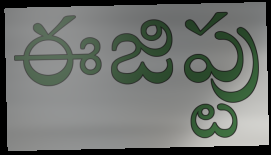
ఈజిప్టు